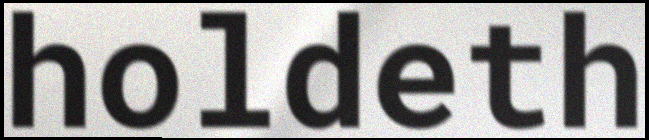
holdeth